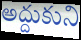
అద్దుకుని